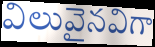
విలువైనవిగా